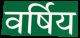
वर्षिय